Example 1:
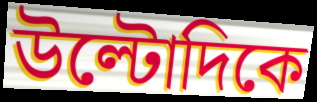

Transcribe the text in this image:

উল্টোদিকে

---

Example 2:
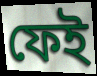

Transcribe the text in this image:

ফেই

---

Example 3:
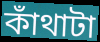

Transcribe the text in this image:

কাঁথাটা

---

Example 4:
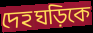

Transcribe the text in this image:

দেহঘড়িকে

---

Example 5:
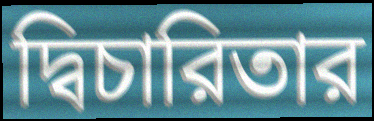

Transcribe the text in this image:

দ্বিচারিতার